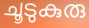
ചൂടുകുരു